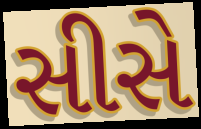
સીસે